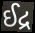
ઈદ્ર